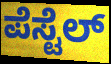
ಪೆಸ್ಟೆಲ್